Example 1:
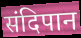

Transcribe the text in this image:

संदिपान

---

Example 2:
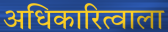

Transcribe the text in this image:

अधिकारित्वाला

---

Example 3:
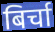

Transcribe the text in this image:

बिर्चा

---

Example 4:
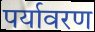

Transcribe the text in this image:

पर्यावरण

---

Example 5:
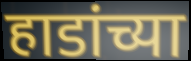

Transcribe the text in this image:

हाडांच्या